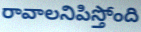
రావాలనిపిస్తోంది